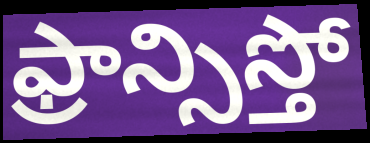
ఫ్రాన్సిస్తో